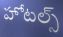
హోటల్స్